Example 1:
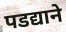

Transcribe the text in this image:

पडद्याने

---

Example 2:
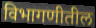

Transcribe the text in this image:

विभागणीतील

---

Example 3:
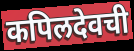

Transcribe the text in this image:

कपिलदेवची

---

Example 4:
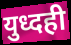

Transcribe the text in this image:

युध्दही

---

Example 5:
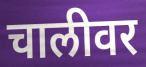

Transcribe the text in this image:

चालीवर